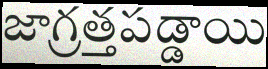
జాగ్రత్తపడ్డాయి